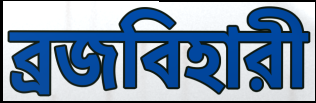
ব্রজবিহারী